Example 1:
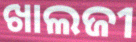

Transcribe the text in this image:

ଖାଲଜୀ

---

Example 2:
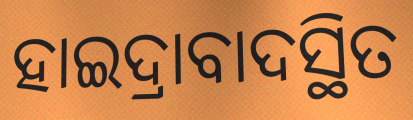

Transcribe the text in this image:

ହାଇଦ୍ରାବାଦସ୍ଥିତ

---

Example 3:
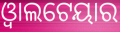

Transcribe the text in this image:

ଓ୍ୱାଲଟେୟାର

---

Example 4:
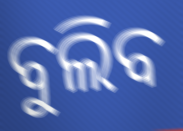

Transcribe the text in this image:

ବୁଲିବ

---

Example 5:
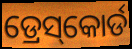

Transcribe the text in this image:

ଡ୍ରେସ୍‌କୋର୍ଡ